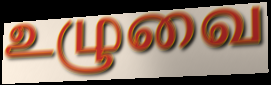
உழுவை